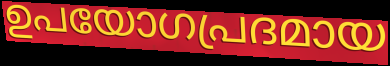
ഉപയോഗപ്രദമായ